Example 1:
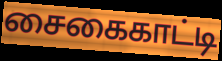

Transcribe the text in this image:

சைகைகாட்டி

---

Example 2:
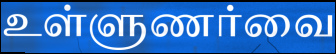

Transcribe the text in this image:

உள்ளுணர்வை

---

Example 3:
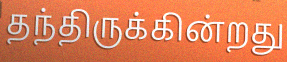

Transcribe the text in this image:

தந்திருக்கின்றது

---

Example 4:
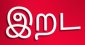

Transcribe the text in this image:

இறட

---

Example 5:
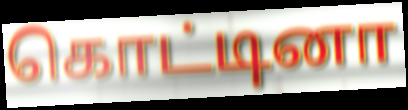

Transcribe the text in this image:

கொட்டினா